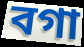
বগা